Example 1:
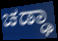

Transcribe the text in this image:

ಚಡ್ಢಾ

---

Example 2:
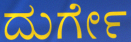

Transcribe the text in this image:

ದುರ್ಗೇ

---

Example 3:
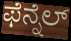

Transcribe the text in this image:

ಫೆನ್ನೆಲ್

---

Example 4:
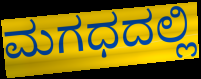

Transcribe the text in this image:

ಮಗಧದಲ್ಲಿ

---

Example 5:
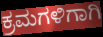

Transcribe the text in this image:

ಕ್ರಮಗಳಿಗಾಗಿ